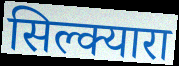
सिल्क्यारा